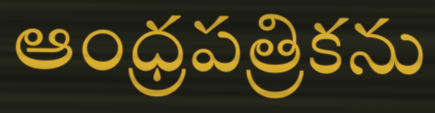
ఆంధ్రపత్రికను